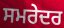
ਸਮਰੇਦਰ